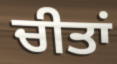
ਚੀਤਾਂ